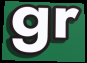
gr